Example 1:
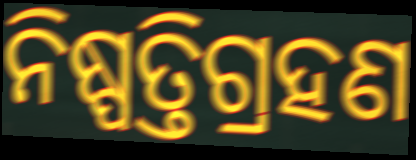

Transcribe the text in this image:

ନିଷ୍ପତ୍ତିଗ୍ରହଣ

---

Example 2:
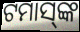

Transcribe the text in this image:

ଟମାସ୍‌ଙ୍କ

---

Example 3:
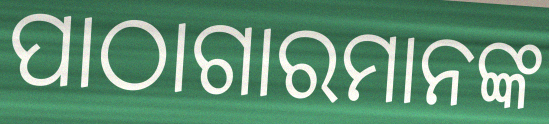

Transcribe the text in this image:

ପାଠାଗାରମାନଙ୍କ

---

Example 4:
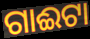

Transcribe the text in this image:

ଗାଈଟା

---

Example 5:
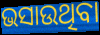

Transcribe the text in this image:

ଭସାଉଥିବା